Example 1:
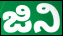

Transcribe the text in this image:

ಜಿನಿ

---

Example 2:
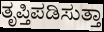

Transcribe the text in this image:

ತೃಪ್ತಿಪಡಿಸುತ್ತಾ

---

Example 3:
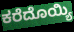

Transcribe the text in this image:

ಕರೆದೊಯ್ಯಿ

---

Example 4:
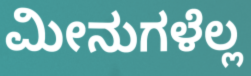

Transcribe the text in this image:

ಮೀನುಗಳೆಲ್ಲ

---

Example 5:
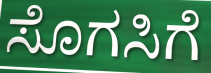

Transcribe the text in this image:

ಸೊಗಸಿಗೆ